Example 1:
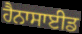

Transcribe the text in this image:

ਹੈਨਾਸਾਈਡ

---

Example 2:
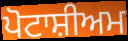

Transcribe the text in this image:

ਪੋਟਾਸ਼ੀਅਮ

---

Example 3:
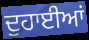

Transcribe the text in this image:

ਦੁਹਾਈਆਂ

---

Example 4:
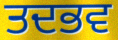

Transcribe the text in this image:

ਤਦਭਵ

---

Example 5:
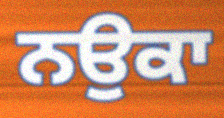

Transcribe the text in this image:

ਨਉਕਾ